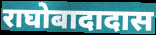
राघोबादादास